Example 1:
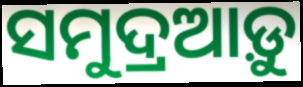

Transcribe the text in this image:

ସମୁଦ୍ରଆଡ଼ୁ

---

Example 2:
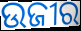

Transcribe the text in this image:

ଉଜୀର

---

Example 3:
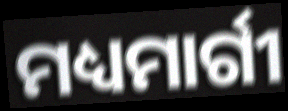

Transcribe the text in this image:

ମଧ୍ୟମାର୍ଗୀ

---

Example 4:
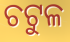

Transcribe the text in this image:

ଚଟୁଳ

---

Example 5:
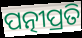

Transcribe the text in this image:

ପତ୍ନୀପ୍ରତି